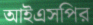
আইএসপির